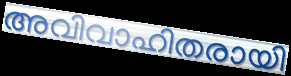
അവിവാഹിതരായി